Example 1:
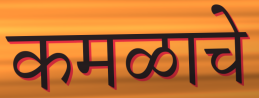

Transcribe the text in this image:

कमळाचे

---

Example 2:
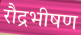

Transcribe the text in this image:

रौद्रभीषण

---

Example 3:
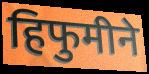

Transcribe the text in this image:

हिफुमीने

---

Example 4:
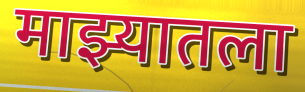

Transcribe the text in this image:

माझ्यातला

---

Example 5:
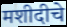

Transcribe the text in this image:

मशीदीचे